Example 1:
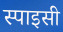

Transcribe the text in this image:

स्पाइसी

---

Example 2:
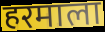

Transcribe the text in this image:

हरमाला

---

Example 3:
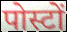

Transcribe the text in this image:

पोस्टों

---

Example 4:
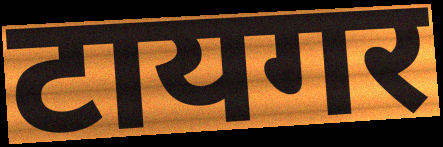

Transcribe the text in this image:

टायगर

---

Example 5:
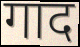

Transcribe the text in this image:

गाद